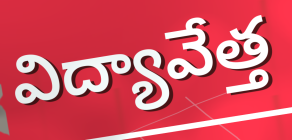
విద్యావేత్త